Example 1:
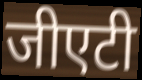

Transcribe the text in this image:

जीएटी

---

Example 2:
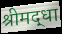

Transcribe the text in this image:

श्रीमद्धा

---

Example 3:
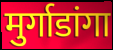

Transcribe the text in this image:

मुर्गाडांगा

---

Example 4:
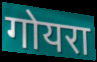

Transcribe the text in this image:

गोयरा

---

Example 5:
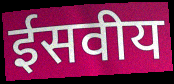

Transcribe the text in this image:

ईसवीय